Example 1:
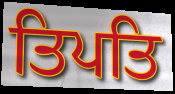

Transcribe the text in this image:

ਤਿਪਤਿ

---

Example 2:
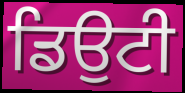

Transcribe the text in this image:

ਡਿਉਟੀ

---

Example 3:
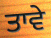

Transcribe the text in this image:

ਤਾਵੇ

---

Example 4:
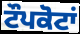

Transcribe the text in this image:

ਟੌਪਕੋਟਾਂ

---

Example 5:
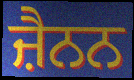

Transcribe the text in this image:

ਜ਼ੈਨਨ